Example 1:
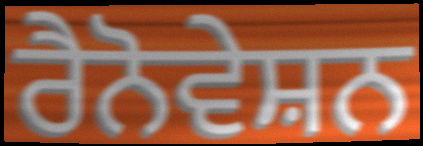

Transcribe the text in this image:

ਰੈਨੋਵੇਸ਼ਨ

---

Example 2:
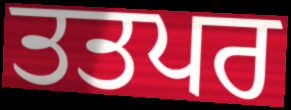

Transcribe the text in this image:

ਤਤਪਰ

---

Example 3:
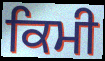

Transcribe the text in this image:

ਕਿਮੀ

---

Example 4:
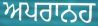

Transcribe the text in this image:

ਅਪਰਾਨਹ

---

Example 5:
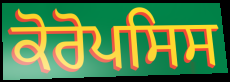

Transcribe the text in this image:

ਕੋਰੋਪਸਿਸ